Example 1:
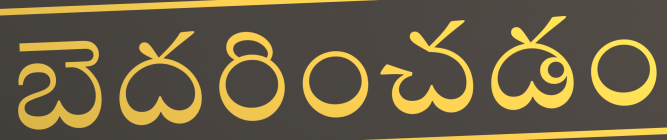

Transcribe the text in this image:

బెదరించడం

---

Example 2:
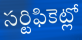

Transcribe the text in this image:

సర్టిఫికెట్లో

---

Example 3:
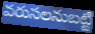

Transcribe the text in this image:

వరుసలనుబట్టి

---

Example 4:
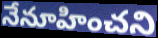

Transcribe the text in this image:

నేనూహించని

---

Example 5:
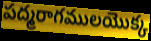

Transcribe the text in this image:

పద్మరాగములయొక్క